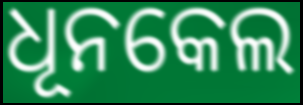
ଧୂନକେଲ